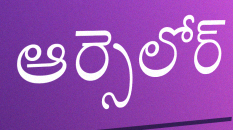
ఆర్సెలోర్